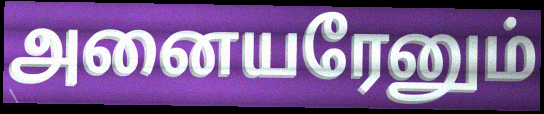
அனையரேனும்